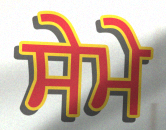
ਸੇਮੇ